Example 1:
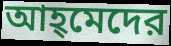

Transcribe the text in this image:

আহ্‌মেদের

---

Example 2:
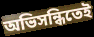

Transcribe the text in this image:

অভিসন্ধিতেই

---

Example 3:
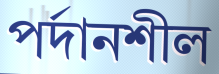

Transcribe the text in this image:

পর্দানশীল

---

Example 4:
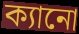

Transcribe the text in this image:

ক্যানো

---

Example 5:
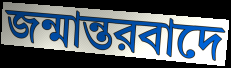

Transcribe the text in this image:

জন্মান্তরবাদে